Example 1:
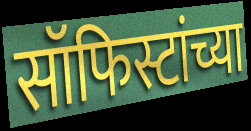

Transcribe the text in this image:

सॉफिस्टांच्या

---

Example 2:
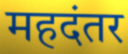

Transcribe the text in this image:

महदंतर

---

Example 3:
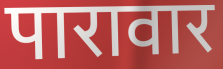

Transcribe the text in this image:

पारावार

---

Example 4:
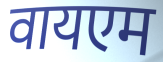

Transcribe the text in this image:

वायएम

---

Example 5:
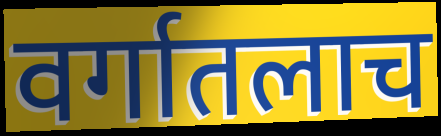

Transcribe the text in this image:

वर्गातलाच